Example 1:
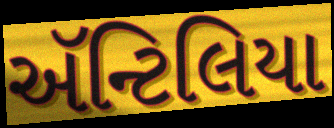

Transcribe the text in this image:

ઍન્ટિલિયા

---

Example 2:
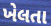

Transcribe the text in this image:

ખેલતા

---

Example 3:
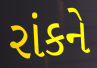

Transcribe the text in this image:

રાંકને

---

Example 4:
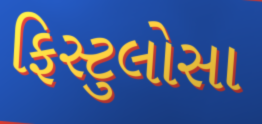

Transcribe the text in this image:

ફિસ્ટુલોસા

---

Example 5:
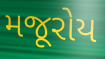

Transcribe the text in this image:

મજૂરોય